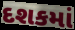
દશકમાં